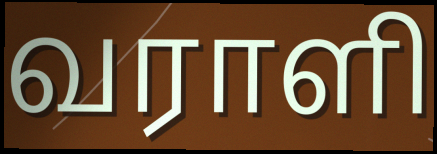
வராளி